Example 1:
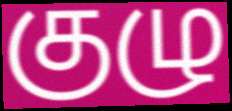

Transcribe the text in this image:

குழு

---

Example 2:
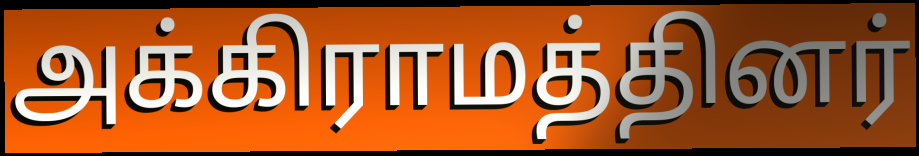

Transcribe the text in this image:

அக்கிராமத்தினர்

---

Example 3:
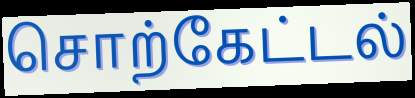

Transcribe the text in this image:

சொற்கேட்டல்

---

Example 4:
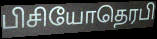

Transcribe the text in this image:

பிசியோதெரபி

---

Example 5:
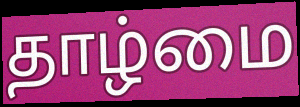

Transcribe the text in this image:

தாழ்மை